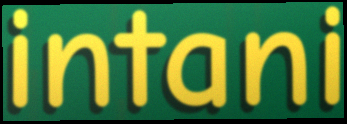
intani